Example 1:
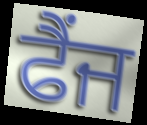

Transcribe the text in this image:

ਫੈਂਜ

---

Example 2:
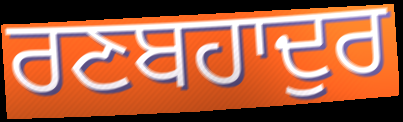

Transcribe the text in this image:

ਰਣਬਹਾਦੁਰ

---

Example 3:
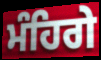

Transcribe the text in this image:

ਮੰਹਿਗੇ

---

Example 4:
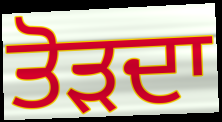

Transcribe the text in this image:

ਤੋੜਦਾ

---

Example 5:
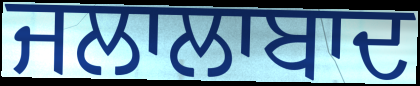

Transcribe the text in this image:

ਜਲਾਲਾਬਾਦ